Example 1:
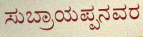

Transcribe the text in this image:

ಸುಬ್ರಾಯಪ್ಪನವರ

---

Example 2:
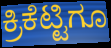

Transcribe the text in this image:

ಕ್ರಿಕೆಟ್ಟಿಗೂ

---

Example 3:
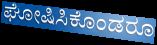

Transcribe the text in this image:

ಘೋಷಿಸಿಕೊಂಡರೂ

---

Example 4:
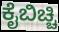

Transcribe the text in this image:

ಕೈಬಿಚ್ಚಿ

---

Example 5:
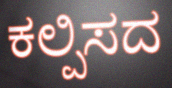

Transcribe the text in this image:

ಕಲ್ಪಿಸದ